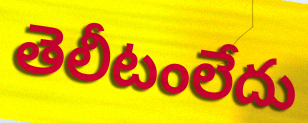
తెలీటంలేదు